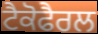
ਟੈਕੋਫੈਰਲ